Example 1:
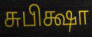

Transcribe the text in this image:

சுபிக்ஷா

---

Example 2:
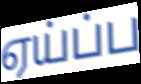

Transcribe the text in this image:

ஏய்ப்ப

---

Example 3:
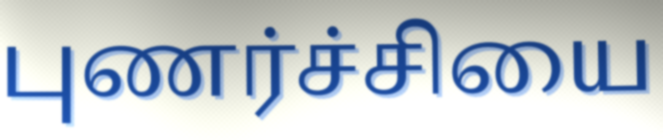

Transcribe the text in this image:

புணர்ச்சியை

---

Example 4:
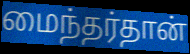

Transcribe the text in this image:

மைந்தர்தான்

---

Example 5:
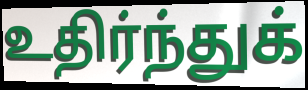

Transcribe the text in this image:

உதிர்ந்துக்